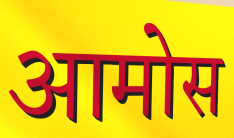
आमोस